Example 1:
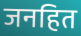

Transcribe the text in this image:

जनहित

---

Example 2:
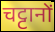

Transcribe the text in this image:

चट्टानों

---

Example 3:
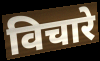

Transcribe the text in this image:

विचारे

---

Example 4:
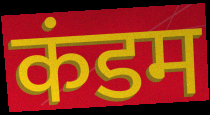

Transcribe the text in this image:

कंडम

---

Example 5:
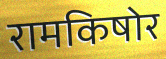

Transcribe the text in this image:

रामकिषोर